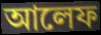
আলেফ